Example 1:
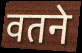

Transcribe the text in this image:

वतने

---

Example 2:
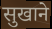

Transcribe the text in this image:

सुखाने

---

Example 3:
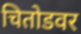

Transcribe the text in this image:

चितोडवर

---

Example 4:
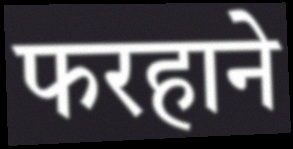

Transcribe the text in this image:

फरहाने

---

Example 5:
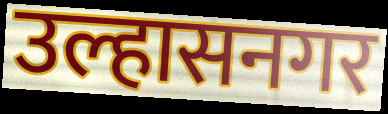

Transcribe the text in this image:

उल्हासनगर